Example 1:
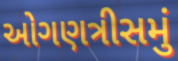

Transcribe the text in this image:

ઓગણત્રીસમું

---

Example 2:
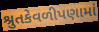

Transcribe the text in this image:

શ્રુતકેવળીપણામાં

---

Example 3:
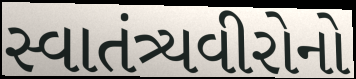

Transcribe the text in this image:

સ્વાતંત્ર્યવીરોનો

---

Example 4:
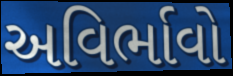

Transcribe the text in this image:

અવિર્ભાવો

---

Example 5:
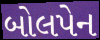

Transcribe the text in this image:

બોલપેન